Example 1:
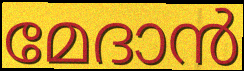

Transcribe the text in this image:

മേദാൻ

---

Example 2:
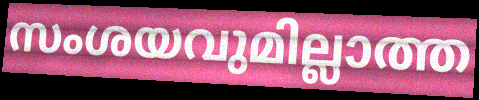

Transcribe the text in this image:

സംശയവുമില്ലാത്ത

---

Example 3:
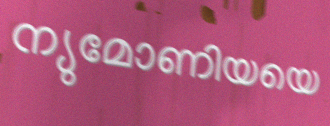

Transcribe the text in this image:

ന്യുമോണിയയെ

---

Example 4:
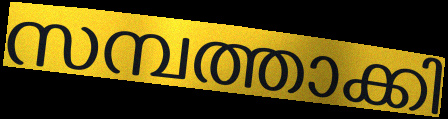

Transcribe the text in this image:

സമ്പത്താക്കി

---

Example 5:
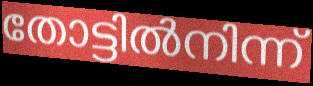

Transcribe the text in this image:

തോട്ടിൽനിന്ന്